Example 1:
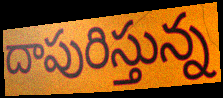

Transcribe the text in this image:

దాపురిస్తున్న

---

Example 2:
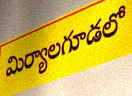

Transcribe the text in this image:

మిర్యాలగూడలో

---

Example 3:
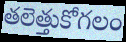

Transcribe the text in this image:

తలెత్తుకోగలం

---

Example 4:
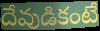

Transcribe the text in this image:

దేవుడికంటే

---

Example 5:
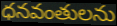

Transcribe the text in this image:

ధనవంతులను